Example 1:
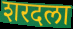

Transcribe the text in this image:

शरदला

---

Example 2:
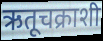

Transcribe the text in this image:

ऋतूचक्राशी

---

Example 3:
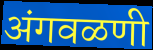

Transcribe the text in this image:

अंगवळणी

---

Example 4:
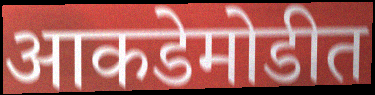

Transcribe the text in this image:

आकडेमोडीत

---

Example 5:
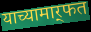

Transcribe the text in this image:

याच्यामार्फत